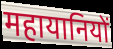
महायानियों